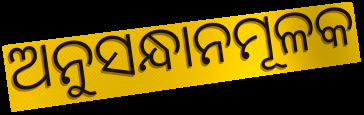
ଅନୁସନ୍ଧାନମୂଳକ